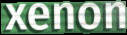
xenon